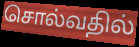
சொல்வதில்